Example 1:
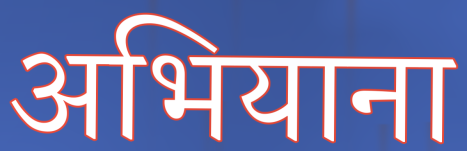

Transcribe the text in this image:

अभियाना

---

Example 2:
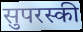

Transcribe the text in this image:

सुपरस्की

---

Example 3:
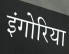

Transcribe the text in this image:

इंगोरिया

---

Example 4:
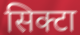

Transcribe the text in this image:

सिक्टा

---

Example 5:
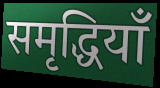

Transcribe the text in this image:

समृद्धियाँ